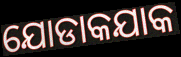
ଯୋଡାକଯାକ